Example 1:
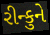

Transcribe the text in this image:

રીન્કુને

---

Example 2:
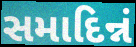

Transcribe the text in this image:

સમાદિન્નં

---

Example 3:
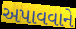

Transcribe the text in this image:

અપાવવાને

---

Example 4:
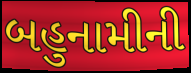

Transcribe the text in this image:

બહુનામીની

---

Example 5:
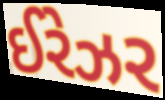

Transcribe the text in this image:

ઈરેઝર